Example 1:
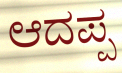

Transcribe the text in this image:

ಆದಪ್ಪ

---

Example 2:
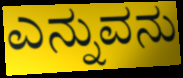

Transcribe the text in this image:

ಎನ್ನುವನು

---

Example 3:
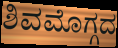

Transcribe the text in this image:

ಶಿವಮೊಗ್ಗದ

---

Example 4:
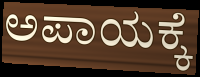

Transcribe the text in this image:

ಅಪಾಯಕ್ಕೆ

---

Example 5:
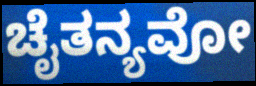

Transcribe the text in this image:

ಚೈತನ್ಯವೋ